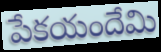
పేకయందేమి